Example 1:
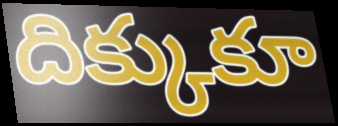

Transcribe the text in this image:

దిక్కుకూ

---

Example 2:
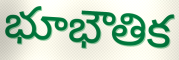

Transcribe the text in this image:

భూభౌతిక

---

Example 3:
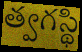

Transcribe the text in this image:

త్వగస్థి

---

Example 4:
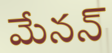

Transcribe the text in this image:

మేనన్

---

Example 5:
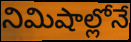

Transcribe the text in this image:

నిమిషాల్లోనే